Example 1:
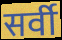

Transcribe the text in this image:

सर्वी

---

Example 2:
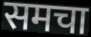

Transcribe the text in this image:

समचा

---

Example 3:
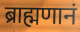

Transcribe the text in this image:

ब्राह्मणानं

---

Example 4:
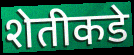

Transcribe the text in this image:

शेतीकडे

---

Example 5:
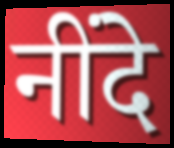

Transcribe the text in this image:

नींदे